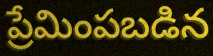
ప్రేమింపబడిన